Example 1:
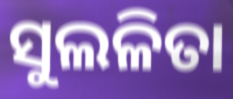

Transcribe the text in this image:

ସୁଲଳିତା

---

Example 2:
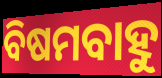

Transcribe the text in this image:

ବିଷମବାହୁ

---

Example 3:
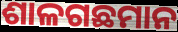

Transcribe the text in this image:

ଶାଳଗଛମାନ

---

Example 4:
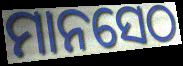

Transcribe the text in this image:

ମାନସେଠ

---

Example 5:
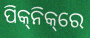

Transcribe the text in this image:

ପିକ୍‌ନିକ୍‌ରେ